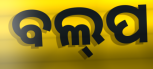
ବଲ୍‍ପ